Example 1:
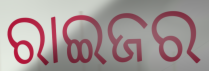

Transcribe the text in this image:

ରାଇଜର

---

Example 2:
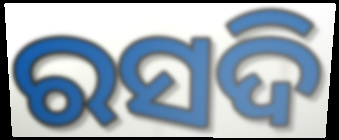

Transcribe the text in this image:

ରସଦି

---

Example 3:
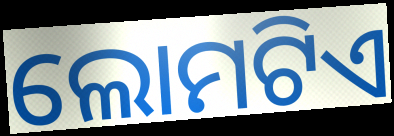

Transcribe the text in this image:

ଲୋମଟିଏ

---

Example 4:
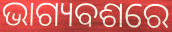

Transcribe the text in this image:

ଭାଗ୍ୟବଶରେ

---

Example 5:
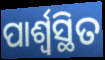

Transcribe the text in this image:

ପାର୍ଶ୍ୱସ୍ଥିତ